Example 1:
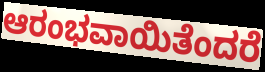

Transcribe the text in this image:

ಆರಂಭವಾಯಿತೆಂದರೆ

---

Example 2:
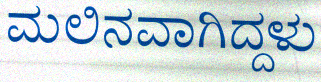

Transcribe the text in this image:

ಮಲಿನವಾಗಿದ್ದಳು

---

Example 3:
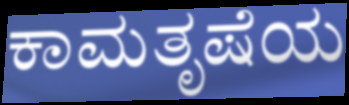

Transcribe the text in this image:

ಕಾಮತೃಷೆಯ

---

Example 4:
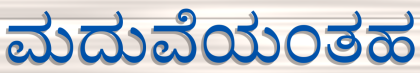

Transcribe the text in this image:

ಮದುವೆಯಂತಹ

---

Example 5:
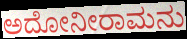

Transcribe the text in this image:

ಅದೋನೀರಾಮನು